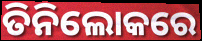
ତିନିଲୋକରେ